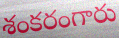
శంకరంగారు